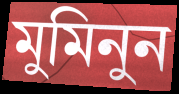
মুমিনুন